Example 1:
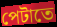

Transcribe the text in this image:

পেটাতে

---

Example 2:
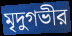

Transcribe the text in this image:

মৃদুগভীর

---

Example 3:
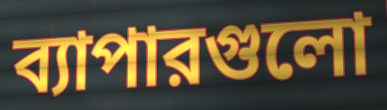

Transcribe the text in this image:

ব্যাপারগুলো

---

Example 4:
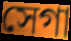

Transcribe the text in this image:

সেগা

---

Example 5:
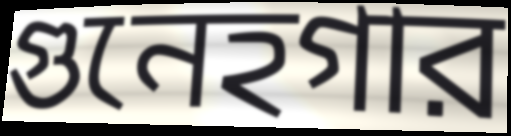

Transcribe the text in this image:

গুনেহগার